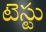
టెస్టు